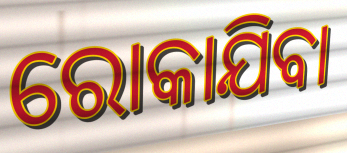
ରୋକାଯିବା